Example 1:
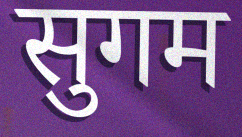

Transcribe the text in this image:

सुगम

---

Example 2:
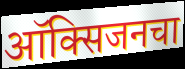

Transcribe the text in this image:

ऑक्सिजनचा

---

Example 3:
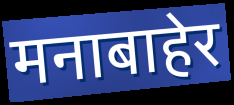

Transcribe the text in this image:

मनाबाहेर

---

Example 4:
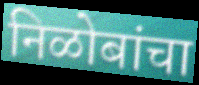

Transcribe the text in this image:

निळोबांचा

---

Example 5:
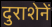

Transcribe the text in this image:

दुराशेनें